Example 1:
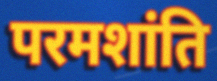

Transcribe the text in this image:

परमशांति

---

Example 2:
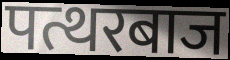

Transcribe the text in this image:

पत्थरबाज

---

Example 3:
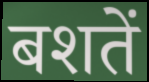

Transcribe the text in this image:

बशतें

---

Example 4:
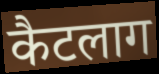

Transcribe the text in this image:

कैटलाग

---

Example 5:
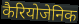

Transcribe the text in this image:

कैरियोजेनिक